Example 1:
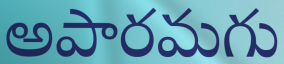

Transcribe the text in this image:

అపారమగు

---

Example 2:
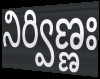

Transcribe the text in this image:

నిర్విణ్ణః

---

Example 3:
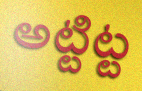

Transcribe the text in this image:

అట్టిట్ట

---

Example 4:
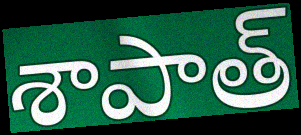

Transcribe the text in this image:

శాపాత్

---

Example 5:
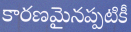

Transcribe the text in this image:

కారణమైనప్పటికీ